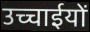
उच्चाईयों